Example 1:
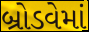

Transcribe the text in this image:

બ્રોડવેમાં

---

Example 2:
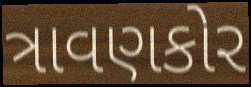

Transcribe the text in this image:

ત્રાવણકોર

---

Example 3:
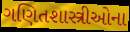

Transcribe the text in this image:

ગણિતશાસ્ત્રીઓના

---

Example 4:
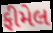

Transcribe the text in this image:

ફીમેલ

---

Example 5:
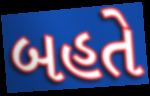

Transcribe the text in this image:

બહતે